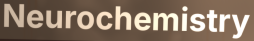
Neurochemistry